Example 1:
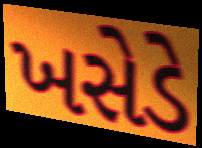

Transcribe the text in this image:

ખસેડે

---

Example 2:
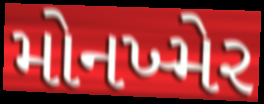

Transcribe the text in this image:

મોનખ્મેર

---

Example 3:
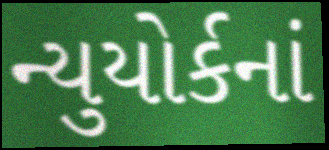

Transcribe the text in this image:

ન્યુયોર્કનાં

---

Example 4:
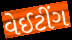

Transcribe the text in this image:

વેઈટીંગ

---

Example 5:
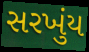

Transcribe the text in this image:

સરખુંય